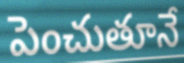
పెంచుతూనే